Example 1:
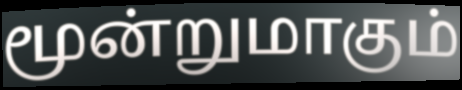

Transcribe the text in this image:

மூன்றுமாகும்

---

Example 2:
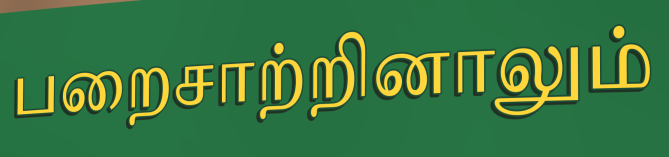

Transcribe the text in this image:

பறைசாற்றினாலும்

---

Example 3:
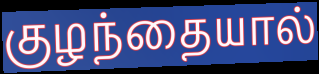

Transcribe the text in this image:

குழந்தையால்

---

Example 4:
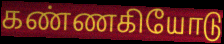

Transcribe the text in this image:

கண்ணகியோடு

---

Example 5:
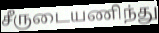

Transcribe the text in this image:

சீருடையணிந்து